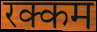
रक्कम